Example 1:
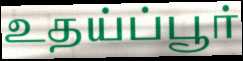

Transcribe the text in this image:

உதய்ப்பூர்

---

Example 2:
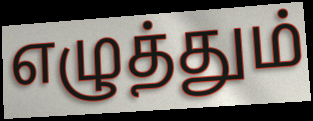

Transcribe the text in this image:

எழுத்தும்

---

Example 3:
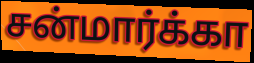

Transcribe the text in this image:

சன்மார்க்கா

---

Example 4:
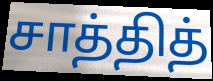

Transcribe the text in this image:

சாத்தித்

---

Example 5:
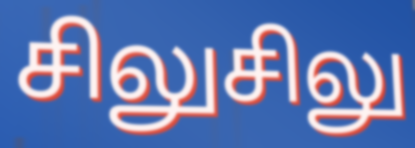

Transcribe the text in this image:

சிலுசிலு